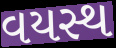
વયસ્થ